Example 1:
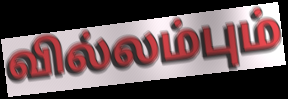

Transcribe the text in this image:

வில்லம்பும்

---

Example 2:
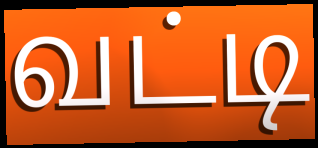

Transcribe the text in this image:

வட்டி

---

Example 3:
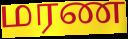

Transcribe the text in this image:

மரண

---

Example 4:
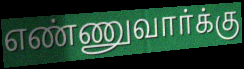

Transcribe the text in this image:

எண்ணுவார்க்கு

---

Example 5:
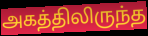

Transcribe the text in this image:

அகத்திலிருந்த